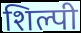
शिल्‍पी